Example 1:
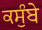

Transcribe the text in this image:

ਕਸੁੰਬੇ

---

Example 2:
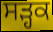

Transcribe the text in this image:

ਸੜ੍ਹਕ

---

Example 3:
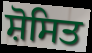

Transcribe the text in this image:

ਸ਼ੋਸਿਤ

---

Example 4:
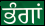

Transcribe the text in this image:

ਭੰਗਾਂ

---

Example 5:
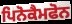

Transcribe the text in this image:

ਪਿਨੋਕੈਮਫੋਨ